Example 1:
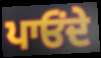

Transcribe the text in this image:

ਪਾਓਂਦੇ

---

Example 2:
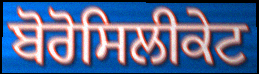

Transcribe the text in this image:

ਬੋਰੋਸਿਲੀਕੇਟ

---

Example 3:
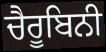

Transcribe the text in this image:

ਚੈਰੂਬਿਨੀ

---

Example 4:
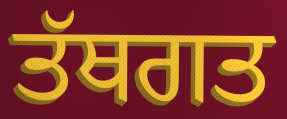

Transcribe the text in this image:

ਤੱਥਗਤ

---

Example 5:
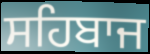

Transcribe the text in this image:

ਸਹਿਬਾਜ